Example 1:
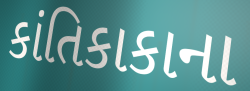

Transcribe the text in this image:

કાંતિકાકાના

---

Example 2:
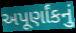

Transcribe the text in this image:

અપૂર્ણાંકનું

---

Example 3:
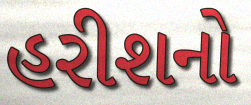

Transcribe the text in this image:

હરીશનો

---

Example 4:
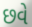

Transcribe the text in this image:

છવે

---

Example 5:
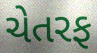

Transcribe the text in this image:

ચેતરફ